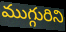
ముగ్గురిని